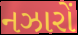
નઝારોં